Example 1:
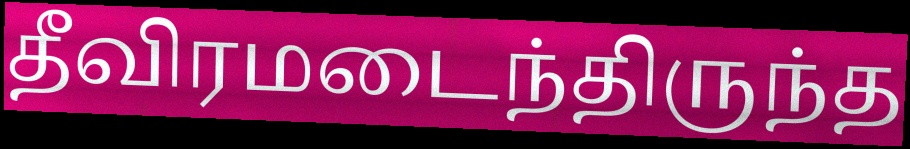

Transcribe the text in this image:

தீவிரமடைந்திருந்த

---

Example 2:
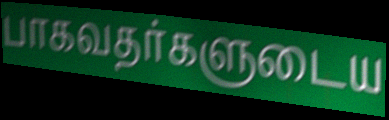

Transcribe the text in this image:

பாகவதர்களுடைய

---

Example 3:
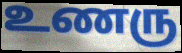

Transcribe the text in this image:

உணரு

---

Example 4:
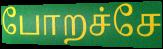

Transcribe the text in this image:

போறச்சே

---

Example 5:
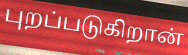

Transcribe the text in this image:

புறப்படுகிறான்